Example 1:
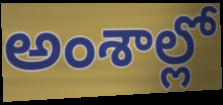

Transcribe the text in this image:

అంశాల్లో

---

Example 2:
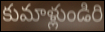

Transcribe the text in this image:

కుమాళ్లుండిరి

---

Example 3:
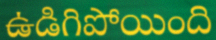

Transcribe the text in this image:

ఉడిగిపోయింది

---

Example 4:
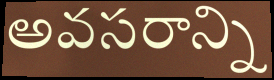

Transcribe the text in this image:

అవసరాన్ని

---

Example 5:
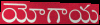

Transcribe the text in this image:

యోగాయ